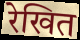
रेखित